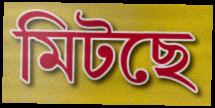
মিটছে